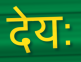
देयः